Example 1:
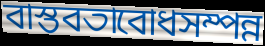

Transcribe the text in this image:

বাস্তবতাবোধসম্পন্ন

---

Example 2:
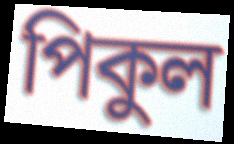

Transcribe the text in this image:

পিকুল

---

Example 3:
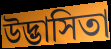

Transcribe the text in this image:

উদ্ভাসিতা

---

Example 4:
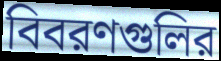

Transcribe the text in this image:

বিবরণগুলির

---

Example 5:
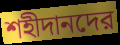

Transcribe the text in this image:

শহীদানদের